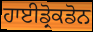
ਹਾਈਡ੍ਰੋਕਡੋਨ